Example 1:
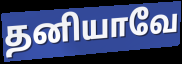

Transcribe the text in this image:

தனியாவே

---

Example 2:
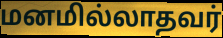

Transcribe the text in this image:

மனமில்லாதவர்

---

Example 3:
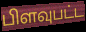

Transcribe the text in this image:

பிளவுபட்ட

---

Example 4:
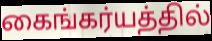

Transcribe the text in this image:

கைங்கர்யத்தில்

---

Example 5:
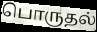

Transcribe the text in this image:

பொருதல்